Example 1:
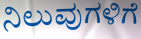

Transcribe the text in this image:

ನಿಲುವುಗಳಿಗೆ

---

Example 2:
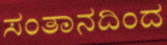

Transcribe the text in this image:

ಸಂತಾನದಿಂದ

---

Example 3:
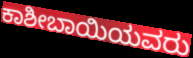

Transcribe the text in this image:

ಕಾಶೀಬಾಯಿಯವರು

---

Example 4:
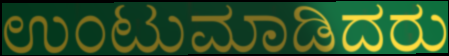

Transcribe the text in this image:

ಉಂಟುಮಾಡಿದರು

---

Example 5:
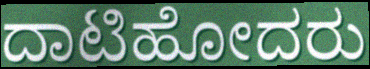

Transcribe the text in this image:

ದಾಟಿಹೋದರು